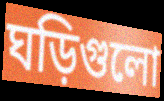
ঘড়িগুলো